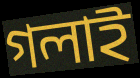
গলাই